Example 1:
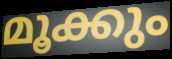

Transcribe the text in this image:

മൂക്കും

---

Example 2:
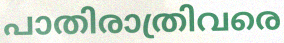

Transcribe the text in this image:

പാതിരാത്രിവരെ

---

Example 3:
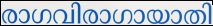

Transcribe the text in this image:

രാഗവിരാഗായാതി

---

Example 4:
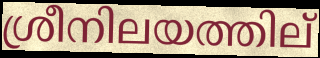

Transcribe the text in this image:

ശ്രീനിലയത്തില്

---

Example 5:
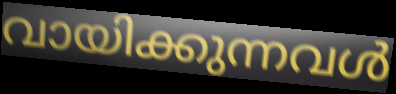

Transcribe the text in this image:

വായിക്കുന്നവൾ